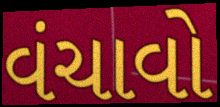
વંચાવો